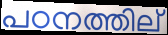
പഠനത്തില്